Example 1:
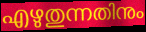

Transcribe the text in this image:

എഴുതുന്നതിനും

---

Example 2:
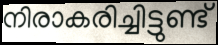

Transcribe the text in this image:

നിരാകരിച്ചിട്ടുണ്ട്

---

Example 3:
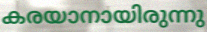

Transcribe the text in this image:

കരയാനായിരുന്നു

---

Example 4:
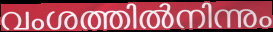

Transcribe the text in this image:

വംശത്തിൽനിന്നും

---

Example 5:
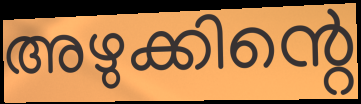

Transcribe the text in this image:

അഴുക്കിന്റെ